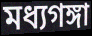
মধ্যগঙ্গা